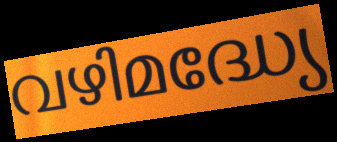
വഴിമദ്ധ്യേ